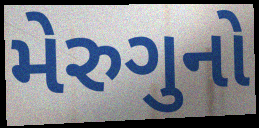
મેરુગુનો